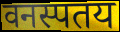
वनस्पतय